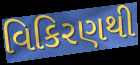
વિકિરણથી